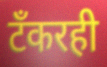
टँकरही